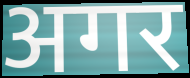
अगर